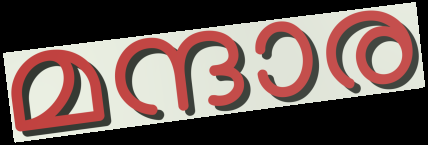
മന്ദാര